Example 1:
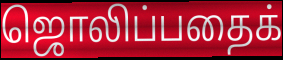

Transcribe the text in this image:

ஜொலிப்பதைக்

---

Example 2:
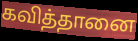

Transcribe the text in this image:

கவித்தானை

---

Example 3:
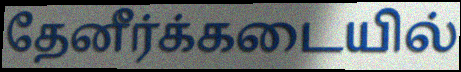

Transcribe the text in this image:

தேனீர்க்கடையில்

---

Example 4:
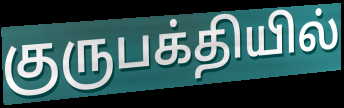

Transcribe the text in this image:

குருபக்தியில்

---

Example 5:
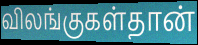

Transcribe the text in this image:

விலங்குகள்தான்